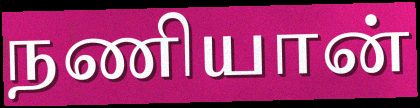
நணியான்